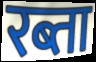
रब्ता